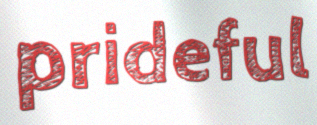
prideful